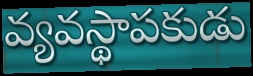
వ్యవస్థాపకుడు